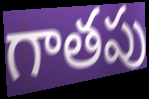
గాతపు